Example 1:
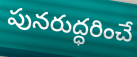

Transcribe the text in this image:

పునరుద్ధరించే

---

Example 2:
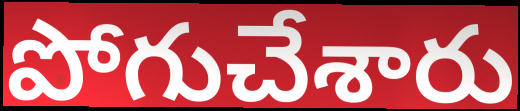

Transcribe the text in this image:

పోగుచేశారు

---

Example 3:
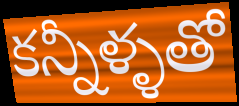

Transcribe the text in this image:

కన్నీళ్ళతో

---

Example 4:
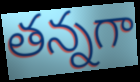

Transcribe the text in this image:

తన్నగా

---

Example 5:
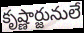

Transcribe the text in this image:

కృష్ణార్జునులే